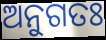
ଅନୁଗତଃ